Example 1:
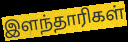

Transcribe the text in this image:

இளந்தாரிகள்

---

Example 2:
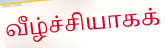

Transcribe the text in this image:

வீழ்ச்சியாகக்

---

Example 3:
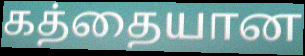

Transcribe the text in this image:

கத்தையான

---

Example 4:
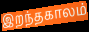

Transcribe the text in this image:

இறந்தகாலம்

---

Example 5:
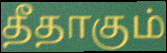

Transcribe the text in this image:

தீதாகும்